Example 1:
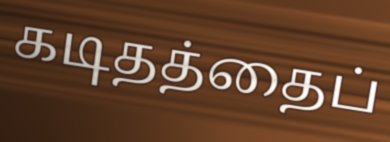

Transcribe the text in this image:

கடிதத்தைப்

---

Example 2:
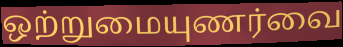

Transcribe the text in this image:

ஒற்றுமையுணர்வை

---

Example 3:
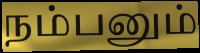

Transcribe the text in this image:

நம்பனும்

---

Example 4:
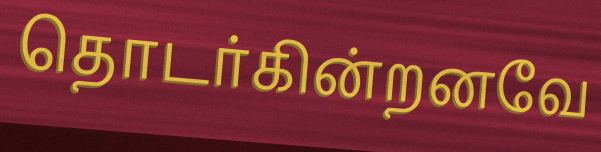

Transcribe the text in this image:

தொடர்கின்றனவே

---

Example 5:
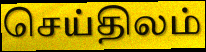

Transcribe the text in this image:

செய்திலம்